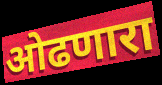
ओढणारा